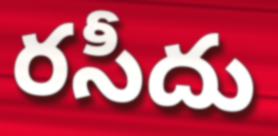
రసీదు